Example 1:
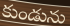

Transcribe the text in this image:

కుండును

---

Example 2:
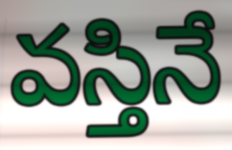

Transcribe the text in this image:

వస్తినే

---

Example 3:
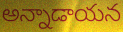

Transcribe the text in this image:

అన్నాడాయన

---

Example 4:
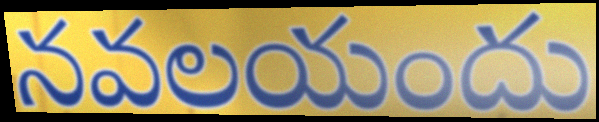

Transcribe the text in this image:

నవలయందు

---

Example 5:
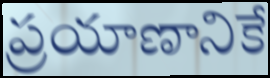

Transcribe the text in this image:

ప్రయాణానికే